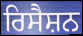
ਰਿਸੈਸ਼ਨ